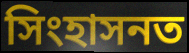
সিংহাসনত